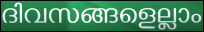
ദിവസങ്ങളെല്ലാം